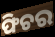
ଫିଚର